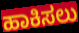
ಹಾಕಿಸಲು